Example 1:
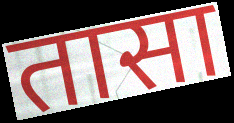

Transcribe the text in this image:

तासा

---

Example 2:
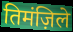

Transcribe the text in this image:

तिमंज़िले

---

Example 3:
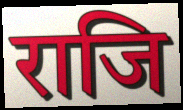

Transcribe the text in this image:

राजि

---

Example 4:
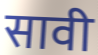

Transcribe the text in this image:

सावी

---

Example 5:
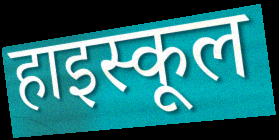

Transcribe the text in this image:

हाइस्कूल